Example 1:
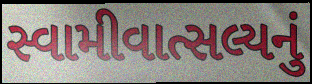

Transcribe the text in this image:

સ્વામીવાત્સલ્યનું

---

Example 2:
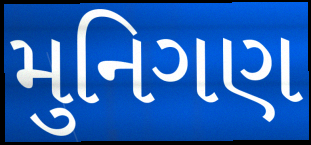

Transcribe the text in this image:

મુનિગણ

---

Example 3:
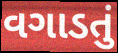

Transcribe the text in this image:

વગાડતું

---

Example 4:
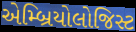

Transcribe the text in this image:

એમ્બ્રિયોલોજિસ્ટ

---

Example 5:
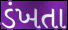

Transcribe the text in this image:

ડંખતા